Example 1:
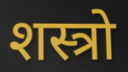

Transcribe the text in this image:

शस्त्रो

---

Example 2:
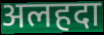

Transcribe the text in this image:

अलहदा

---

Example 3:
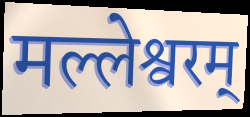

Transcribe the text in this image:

मल्लेश्वरम्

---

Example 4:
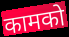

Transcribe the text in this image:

कामको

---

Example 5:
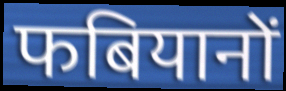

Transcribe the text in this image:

फबियानों